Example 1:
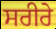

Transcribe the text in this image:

ਸਰੀਰੇ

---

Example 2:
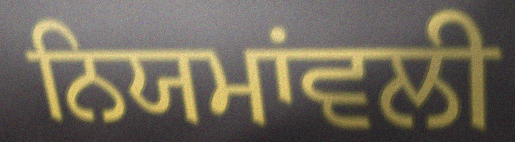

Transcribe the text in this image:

ਨਿਯਮਾਂਵਲੀ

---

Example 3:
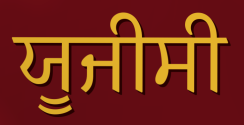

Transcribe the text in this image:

ਯੂਜੀਸੀ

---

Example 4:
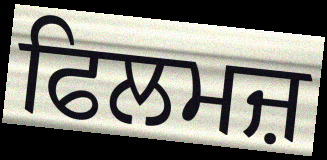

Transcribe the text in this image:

ਫਿਲਮਜ਼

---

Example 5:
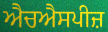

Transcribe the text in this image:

ਐਚਐਸਪੀਜ਼